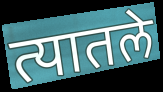
त्‍यातले